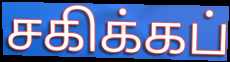
சகிக்கப்